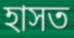
হাসত